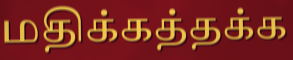
மதிக்கத்தக்க